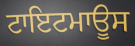
ਟਾਇਟਮਾਊਸ